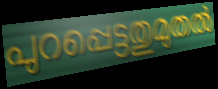
പുറപ്പെട്ടതുമുതൽ